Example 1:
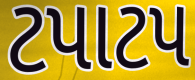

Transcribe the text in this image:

ટપાટપ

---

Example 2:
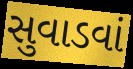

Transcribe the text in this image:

સુવાડવાં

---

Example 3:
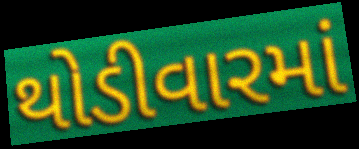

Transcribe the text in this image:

થોડીવારમાં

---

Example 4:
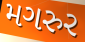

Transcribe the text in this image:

મગરુર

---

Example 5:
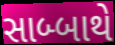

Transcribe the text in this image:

સાબ્બાથે